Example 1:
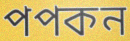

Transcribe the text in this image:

পপকন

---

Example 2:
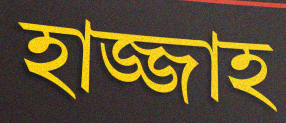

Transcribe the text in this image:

হাজ্জাহ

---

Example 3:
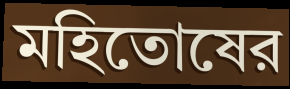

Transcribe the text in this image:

মহিতোষের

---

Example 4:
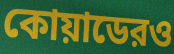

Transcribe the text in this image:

কোয়াডেরও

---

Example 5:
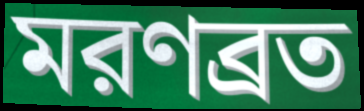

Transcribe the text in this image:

মরণব্রত